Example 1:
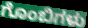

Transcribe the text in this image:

ಗೊಂಬಿಗಳು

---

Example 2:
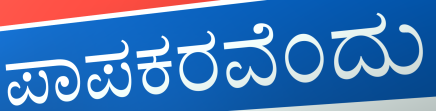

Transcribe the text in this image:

ಪಾಪಕರವೆಂದು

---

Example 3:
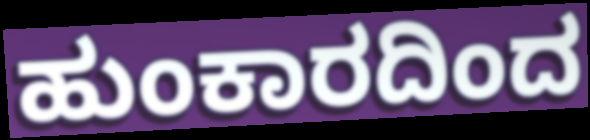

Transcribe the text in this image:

ಹುಂಕಾರದಿಂದ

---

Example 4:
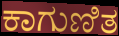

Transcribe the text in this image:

ಕಾಗುಣಿತ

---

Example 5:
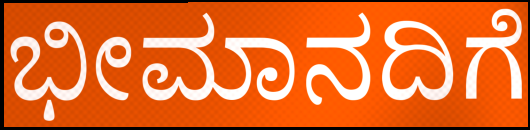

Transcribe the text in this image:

ಭೀಮಾನದಿಗೆ